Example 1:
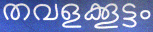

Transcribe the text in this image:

തവളക്കൂട്ടം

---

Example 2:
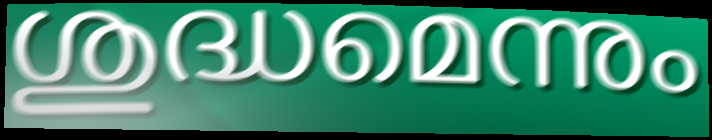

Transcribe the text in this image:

ശുദ്ധമെന്നും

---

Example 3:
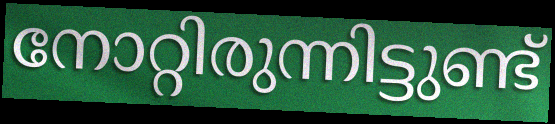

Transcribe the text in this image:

നോറ്റിരുന്നിട്ടുണ്ട്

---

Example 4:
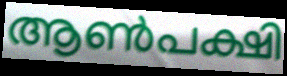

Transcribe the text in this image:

ആൺപക്ഷി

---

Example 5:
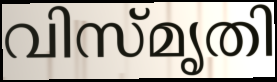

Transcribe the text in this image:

വിസ്മൃതി